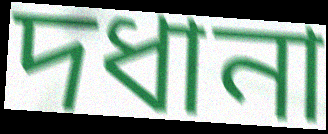
দধানা